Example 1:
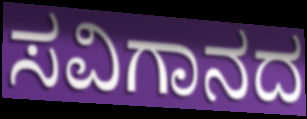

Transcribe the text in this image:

ಸವಿಗಾನದ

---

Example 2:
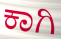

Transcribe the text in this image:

ಕಾಗಿ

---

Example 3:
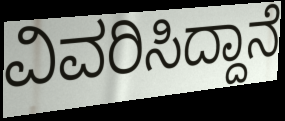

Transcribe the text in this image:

ವಿವರಿಸಿದ್ದಾನೆ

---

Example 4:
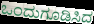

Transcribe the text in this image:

ಒಂದುಗೂಡಿಸಿದ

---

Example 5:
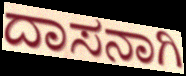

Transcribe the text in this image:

ದಾಸನಾಗಿ